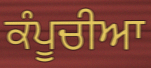
ਕੰਪੂਚੀਆ